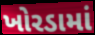
ખોરડામાં